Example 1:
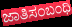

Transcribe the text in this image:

ಜಾತಿಸಂಬಂಧಿ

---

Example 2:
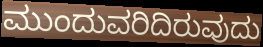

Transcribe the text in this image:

ಮುಂದುವರಿದಿರುವುದು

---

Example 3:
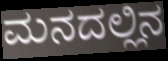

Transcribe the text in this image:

ಮನದಲ್ಲಿನ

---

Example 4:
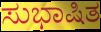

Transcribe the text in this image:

ಸುಭಾಷಿತ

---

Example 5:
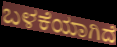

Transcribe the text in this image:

ಬಳಕೆಯಾಗಿದೆ